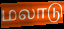
மலாடு